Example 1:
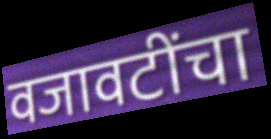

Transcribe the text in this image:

वजावटींचा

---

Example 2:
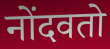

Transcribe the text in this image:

नोंदवतो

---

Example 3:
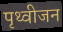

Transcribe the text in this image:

पृथ्वीजन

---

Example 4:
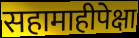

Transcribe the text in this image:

सहामाहीपेक्षा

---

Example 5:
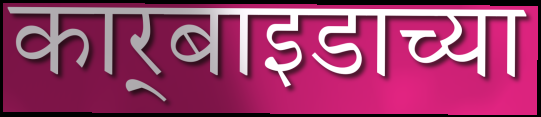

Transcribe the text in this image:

कार्बाइडाच्या